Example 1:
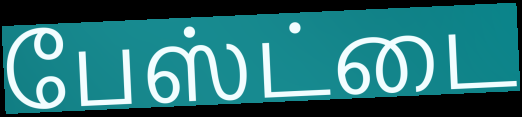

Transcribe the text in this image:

பேஸ்ட்டை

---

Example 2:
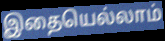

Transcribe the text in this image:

இதையெல்லாம்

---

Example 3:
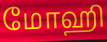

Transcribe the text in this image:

மோஹி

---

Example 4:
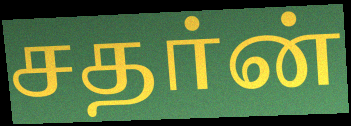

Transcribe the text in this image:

சதர்ன்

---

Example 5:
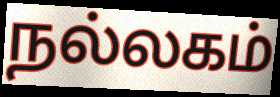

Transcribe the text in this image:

நல்லகம்